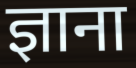
ज्ञाना